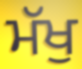
ਮੱਖੁ